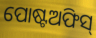
ପୋଷ୍ଟଅଫିସ୍